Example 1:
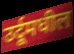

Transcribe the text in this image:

उर्दूमधील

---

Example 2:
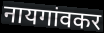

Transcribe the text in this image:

नायगांवकर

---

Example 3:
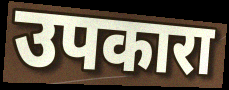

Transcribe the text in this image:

उपकारा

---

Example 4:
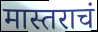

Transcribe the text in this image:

मास्तराचं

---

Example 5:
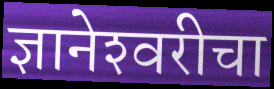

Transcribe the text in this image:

ज्ञानेश्वरीचा